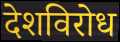
देशविरोध